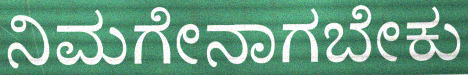
ನಿಮಗೇನಾಗಬೇಕು